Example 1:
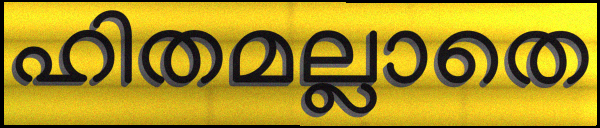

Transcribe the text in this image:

ഹിതമല്ലാതെ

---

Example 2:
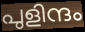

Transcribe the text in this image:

പുളിന്ദം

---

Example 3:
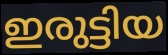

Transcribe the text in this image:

ഇരുട്ടിയ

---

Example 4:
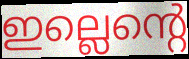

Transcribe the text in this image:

ഇല്ലെന്റെ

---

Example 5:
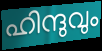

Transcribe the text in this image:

ഹിന്ദുവും